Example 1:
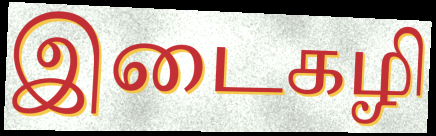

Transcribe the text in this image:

இடைகழி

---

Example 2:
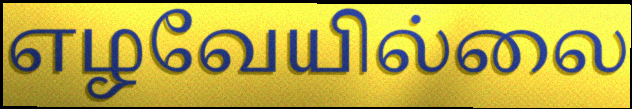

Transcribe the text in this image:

எழவேயில்லை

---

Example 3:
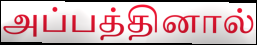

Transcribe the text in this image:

அப்பத்தினால்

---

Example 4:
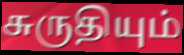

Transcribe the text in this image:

சுருதியும்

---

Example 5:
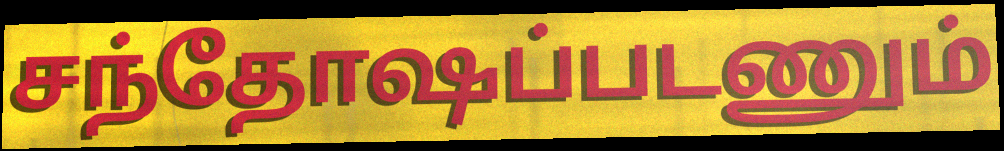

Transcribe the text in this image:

சந்தோஷப்படணும்